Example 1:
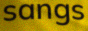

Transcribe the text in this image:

sangs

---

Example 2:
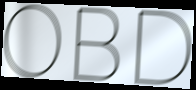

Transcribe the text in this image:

OBD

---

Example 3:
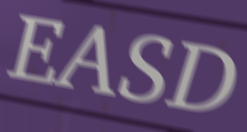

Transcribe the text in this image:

EASD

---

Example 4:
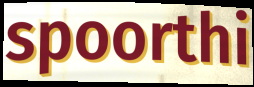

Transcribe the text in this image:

spoorthi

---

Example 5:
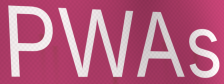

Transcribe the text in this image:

PWAs